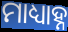
ମାଧ୍ୟାହ୍ନ